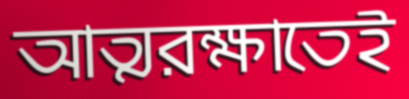
আত্মরক্ষাতেই